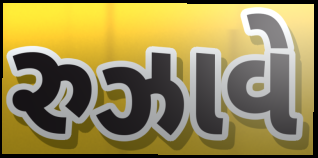
રુઝાવે